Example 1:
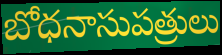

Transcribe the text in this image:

బోధనాసుపత్రులు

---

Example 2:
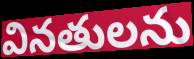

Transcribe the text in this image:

వినతులను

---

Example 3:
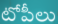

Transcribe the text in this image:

టోపీలు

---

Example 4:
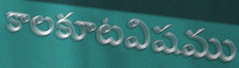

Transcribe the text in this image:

కాలకూటవిషము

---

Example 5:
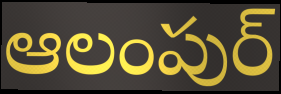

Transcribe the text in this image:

ఆలంపుర్